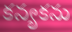
కన్యకను